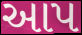
આપ